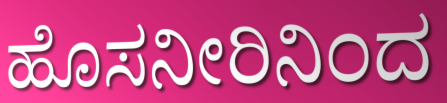
ಹೊಸನೀರಿನಿಂದ